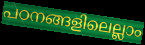
പഠനങ്ങളിലെല്ലാം